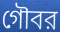
গৌবর